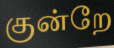
குன்றே